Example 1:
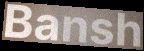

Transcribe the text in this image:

Bansh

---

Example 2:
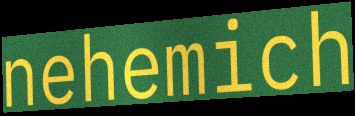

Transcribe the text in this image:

nehemich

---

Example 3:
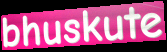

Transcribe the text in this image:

bhuskute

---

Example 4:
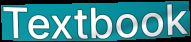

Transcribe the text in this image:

Textbook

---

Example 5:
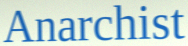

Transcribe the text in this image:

Anarchist